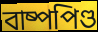
বাষ্পপিণ্ড